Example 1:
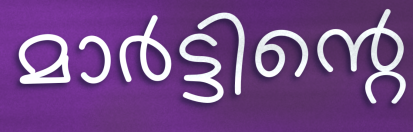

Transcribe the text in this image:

മാർട്ടിന്റെ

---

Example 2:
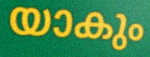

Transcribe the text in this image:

യാകും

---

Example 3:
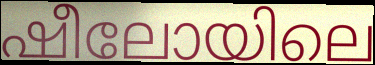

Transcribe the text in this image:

ഷീലോയിലെ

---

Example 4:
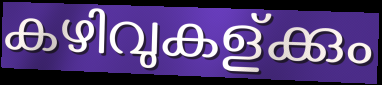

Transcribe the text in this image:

കഴിവുകള്ക്കും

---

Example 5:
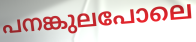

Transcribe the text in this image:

പനങ്കുലപോലെ